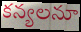
కన్యలనూ